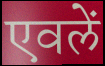
एवलें